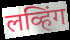
लव्हिंग